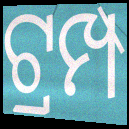
ଟ୍ରମ୍ପ